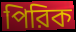
পিরিক